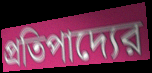
প্রতিপাদ্যের